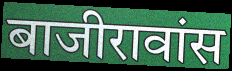
बाजीरावांस